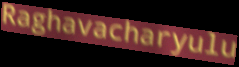
Raghavacharyulu